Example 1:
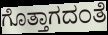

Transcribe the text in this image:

ಗೊತ್ತಾಗದಂತೆ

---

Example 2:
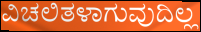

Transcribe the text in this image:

ವಿಚಲಿತಳಾಗುವುದಿಲ್ಲ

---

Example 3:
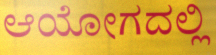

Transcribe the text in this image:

ಆಯೋಗದಲ್ಲಿ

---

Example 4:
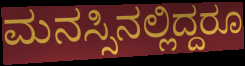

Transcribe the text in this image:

ಮನಸ್ಸಿನಲ್ಲಿದ್ದರೂ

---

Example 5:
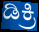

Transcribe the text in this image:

ಡಿಕ್ರಿ